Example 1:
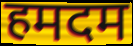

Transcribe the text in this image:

हमदम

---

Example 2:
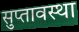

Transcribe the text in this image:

सुप्तावस्था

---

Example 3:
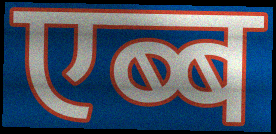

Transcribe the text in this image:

एब्ब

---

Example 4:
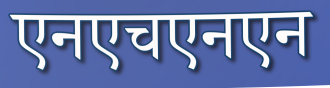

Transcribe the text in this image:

एनएचएनएन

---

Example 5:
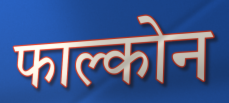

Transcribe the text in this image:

फाल्कोन